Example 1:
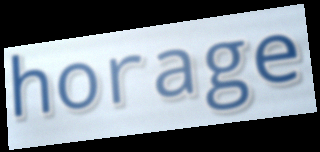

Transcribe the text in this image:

horage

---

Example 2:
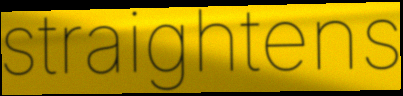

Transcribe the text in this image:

straightens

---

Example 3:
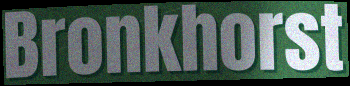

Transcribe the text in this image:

Bronkhorst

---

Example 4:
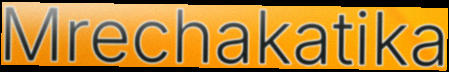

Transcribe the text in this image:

Mrechakatika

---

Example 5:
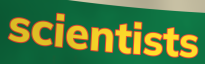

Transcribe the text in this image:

scientists